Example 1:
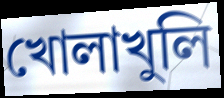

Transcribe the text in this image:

খোলাখুলি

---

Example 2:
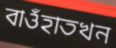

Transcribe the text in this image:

বাওঁহাতখন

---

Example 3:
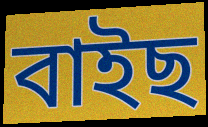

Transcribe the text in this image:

বাইছ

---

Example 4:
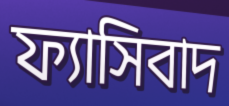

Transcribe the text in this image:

ফ্যাসিবাদ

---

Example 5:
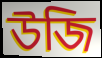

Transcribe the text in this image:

উজি